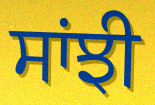
ਸਾਂਝੀ